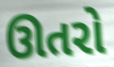
ઊતરો